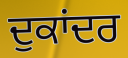
ਦੁਕਾਂਦਰ